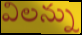
విలన్ను